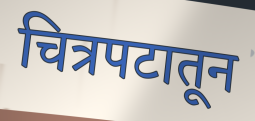
चित्रपटातून